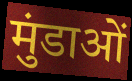
मुंडाओं